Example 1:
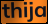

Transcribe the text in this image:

thija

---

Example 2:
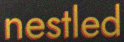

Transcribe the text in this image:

nestled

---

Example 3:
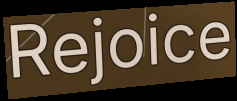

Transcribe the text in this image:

Rejoice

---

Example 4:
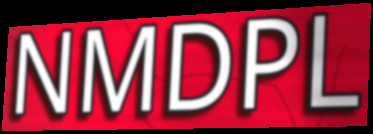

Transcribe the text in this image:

NMDPL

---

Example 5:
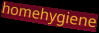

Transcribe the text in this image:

homehygiene